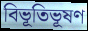
বিভূতিভূষণ